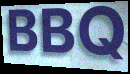
BBQ